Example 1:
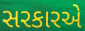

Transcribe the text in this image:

સરકારએ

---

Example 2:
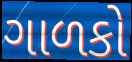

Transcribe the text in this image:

ગાળકો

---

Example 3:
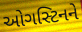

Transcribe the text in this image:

ઓગસ્ટિનને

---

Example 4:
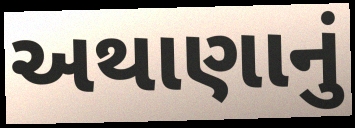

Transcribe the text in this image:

અથાણાનું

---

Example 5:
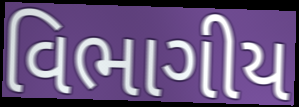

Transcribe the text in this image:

વિભાગીય